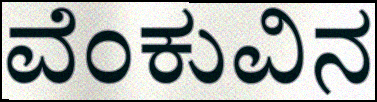
ವೆಂಕುವಿನ